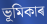
ভূমিকাৰ